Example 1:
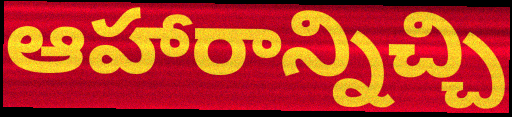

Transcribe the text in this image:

ఆహారాన్నిచ్చి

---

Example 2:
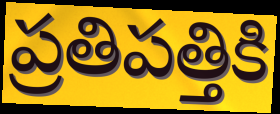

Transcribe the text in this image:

ప్రతిపత్తికి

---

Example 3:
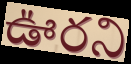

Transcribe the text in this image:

ఊరని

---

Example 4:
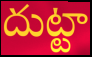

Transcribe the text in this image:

దుట్టా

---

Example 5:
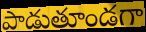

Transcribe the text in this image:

పాడుతూండగా